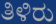
ತಿಳಿರು